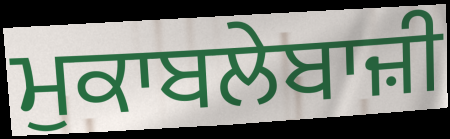
ਮੁਕਾਬਲੇਬਾਜ਼ੀ